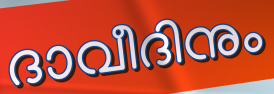
ദാവീദിനും